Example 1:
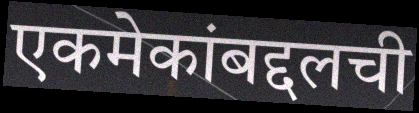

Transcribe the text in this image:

एकमेकांबद्दलची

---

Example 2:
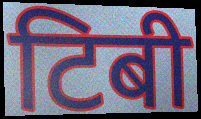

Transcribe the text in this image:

टिबी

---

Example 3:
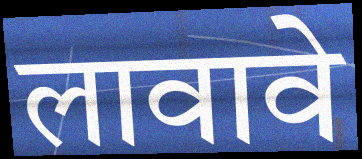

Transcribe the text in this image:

लावावे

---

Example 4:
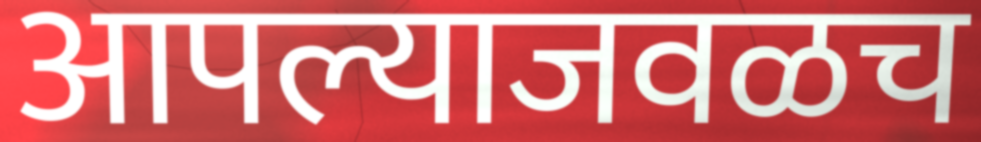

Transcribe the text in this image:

आपल्याजवळच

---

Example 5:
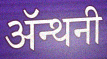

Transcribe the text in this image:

ॲन्थनी